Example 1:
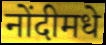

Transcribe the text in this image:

नोंदीमधे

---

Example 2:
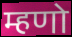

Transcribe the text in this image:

म्हणो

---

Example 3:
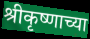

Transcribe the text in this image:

श्रीकृष्णाच्या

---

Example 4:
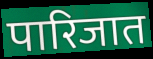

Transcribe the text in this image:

पारिजात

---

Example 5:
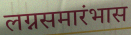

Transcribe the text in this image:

लग्नसमारंभास